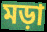
মড়া